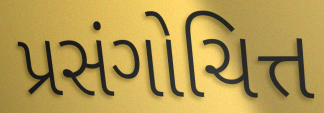
પ્રસંગોચિત્ત